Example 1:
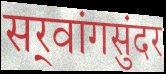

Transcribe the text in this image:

सर्वांगसुंदर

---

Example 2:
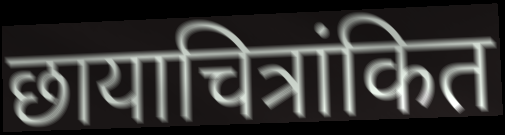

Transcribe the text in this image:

छायाचित्रांकित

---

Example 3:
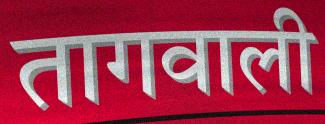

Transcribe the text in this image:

तागवाली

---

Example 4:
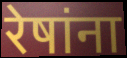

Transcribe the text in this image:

रेषांना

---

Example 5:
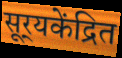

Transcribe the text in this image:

सूर्यकेंद्रित